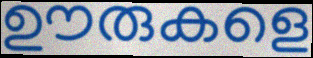
ഊരുകളെ